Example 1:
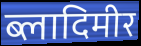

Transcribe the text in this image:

ब्लादिमीर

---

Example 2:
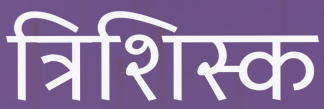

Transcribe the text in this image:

त्रिशिस्क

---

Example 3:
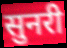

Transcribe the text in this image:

सुनरी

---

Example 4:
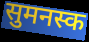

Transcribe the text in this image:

सुमनस्क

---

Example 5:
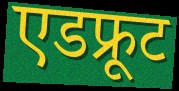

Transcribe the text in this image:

एडफ्रूट